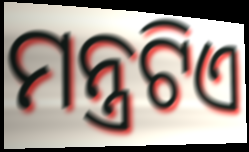
ମନ୍ତ୍ରଟିଏ